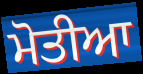
ਮੋਤੀਆ